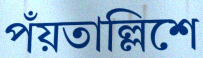
পঁয়তাল্লিশে